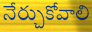
నేర్చుకోవాలి